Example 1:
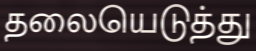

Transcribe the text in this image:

தலையெடுத்து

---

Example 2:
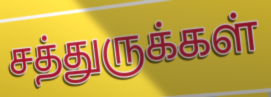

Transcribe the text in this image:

சத்துருக்கள்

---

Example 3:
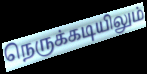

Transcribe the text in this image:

நெருக்கடியிலும்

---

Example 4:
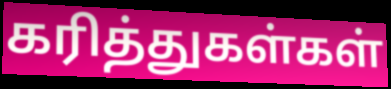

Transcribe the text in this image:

கரித்துகள்கள்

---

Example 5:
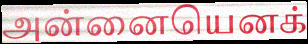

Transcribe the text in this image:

அன்னையெனக்